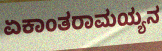
ಏಕಾಂತರಾಮಯ್ಯನ